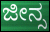
ಜೀನ್ಸ